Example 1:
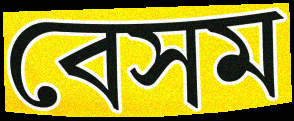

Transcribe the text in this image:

বেসম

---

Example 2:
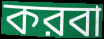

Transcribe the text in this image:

করবা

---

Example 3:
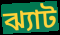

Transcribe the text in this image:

ঝ্যাট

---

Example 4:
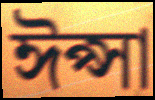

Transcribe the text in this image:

ঈপ্সা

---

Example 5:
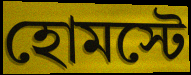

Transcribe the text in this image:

হোমস্টে